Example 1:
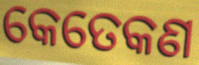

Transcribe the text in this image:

କେତେକଣ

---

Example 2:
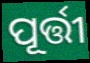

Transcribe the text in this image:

ପୂର୍ତ୍ତୀ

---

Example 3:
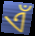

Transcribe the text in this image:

ଏଁ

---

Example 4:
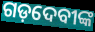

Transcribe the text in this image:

ଗଡ଼ଦେବୀଙ୍କ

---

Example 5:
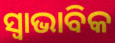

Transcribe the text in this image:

ସ୍ଵାଭାବିକ